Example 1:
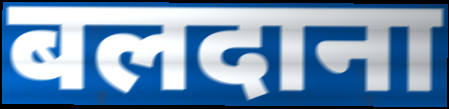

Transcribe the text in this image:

बलदाना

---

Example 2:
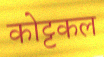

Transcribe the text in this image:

कोट्टकल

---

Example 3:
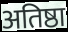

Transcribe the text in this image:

अतिष्ठा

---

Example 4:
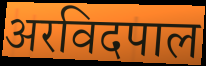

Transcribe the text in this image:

अरविदपाल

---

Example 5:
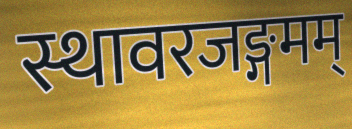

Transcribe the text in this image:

स्थावरजङ्गमम्